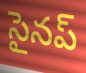
సైనప్